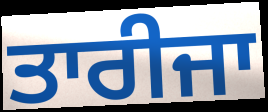
ਤਾਰੀਜਾ